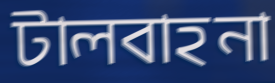
টালবাহনা